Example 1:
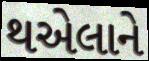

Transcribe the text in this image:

થએલાને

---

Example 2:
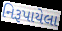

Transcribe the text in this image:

નિરૂપાયેલા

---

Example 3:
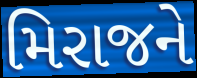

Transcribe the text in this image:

મિરાજને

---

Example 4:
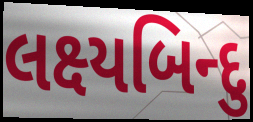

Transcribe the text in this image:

લક્ષ્યબિન્દુ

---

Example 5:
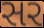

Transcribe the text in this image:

સર